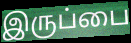
இருப்பை